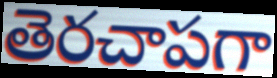
తెరచాపగా